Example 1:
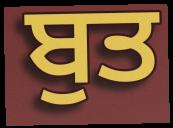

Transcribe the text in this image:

ਬੁਤ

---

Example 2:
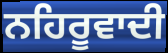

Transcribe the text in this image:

ਨਹਿਰੂਵਾਦੀ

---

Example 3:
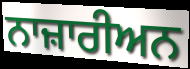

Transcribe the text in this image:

ਨਾਜ਼ਾਰੀਅਨ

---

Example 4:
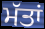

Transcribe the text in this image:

ਮੱਤਾਂ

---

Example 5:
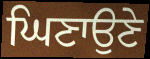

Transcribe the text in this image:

ਘਿਣਾਉਣੇ